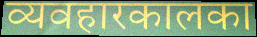
व्यवहारकालका